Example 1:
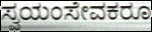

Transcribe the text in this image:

ಸ್ವಯಂಸೇವಕರೂ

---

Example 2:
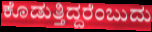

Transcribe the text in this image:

ಕೊಡುತ್ತಿದ್ದರೆಂಬುದು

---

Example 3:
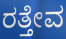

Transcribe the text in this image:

ರತ್ತೇವ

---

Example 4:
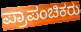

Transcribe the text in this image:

ಪ್ರಾಪಂಚಿಕರು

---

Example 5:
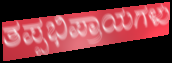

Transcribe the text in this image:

ತಪ್ಪಭಿಪ್ರಾಯಗಳು